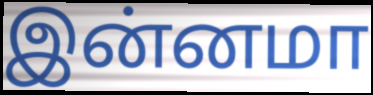
இன்னமா